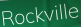
Rockville